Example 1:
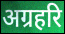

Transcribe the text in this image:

अग्रहरि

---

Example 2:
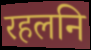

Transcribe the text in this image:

रहलनि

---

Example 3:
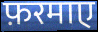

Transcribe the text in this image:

फ़रमाए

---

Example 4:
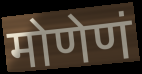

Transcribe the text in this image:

मोणेणं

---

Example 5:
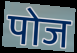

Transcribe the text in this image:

पोज